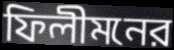
ফিলীমনের